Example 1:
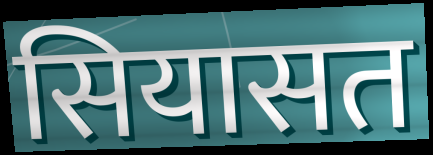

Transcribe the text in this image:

सियासत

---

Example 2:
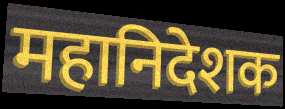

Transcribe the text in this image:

महानिदेशक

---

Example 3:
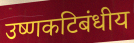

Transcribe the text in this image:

उष्णकटिबंधीय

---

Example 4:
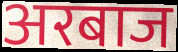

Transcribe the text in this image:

अरबाज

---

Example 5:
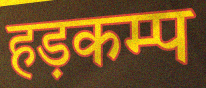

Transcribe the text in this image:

हड़कम्प